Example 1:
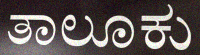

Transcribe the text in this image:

ತಾಲೂಕು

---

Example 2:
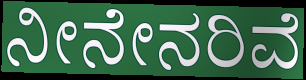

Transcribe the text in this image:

ನೀನೇನರಿವೆ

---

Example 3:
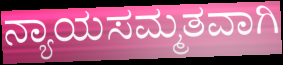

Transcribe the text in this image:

ನ್ಯಾಯಸಮ್ಮತವಾಗಿ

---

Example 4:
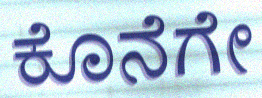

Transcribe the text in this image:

ಕೊನೆಗೇ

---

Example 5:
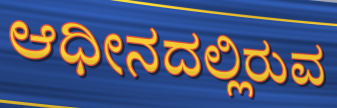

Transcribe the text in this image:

ಆಧೀನದಲ್ಲಿರುವ